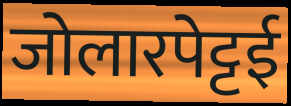
जोलारपेट्टई